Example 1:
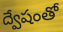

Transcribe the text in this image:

ద్వేషంతో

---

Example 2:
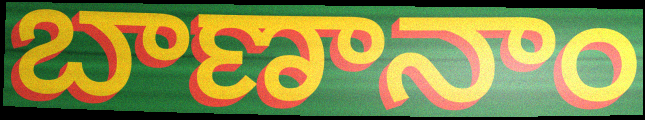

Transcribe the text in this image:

బాణానాం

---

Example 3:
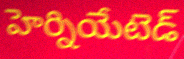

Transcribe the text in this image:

హెర్నియేటెడ్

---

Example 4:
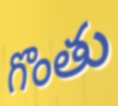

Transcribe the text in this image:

గొంతు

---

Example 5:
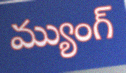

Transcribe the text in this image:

మ్యుంగ్